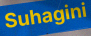
Suhagini